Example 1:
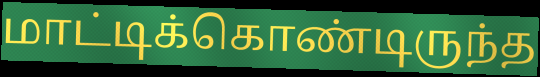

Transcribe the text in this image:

மாட்டிக்கொண்டிருந்த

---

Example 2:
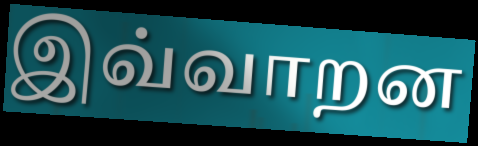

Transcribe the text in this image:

இவ்வாறன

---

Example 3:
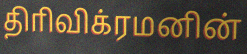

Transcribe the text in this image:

திரிவிக்ரமனின்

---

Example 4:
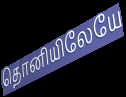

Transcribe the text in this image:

தொனியிலேயே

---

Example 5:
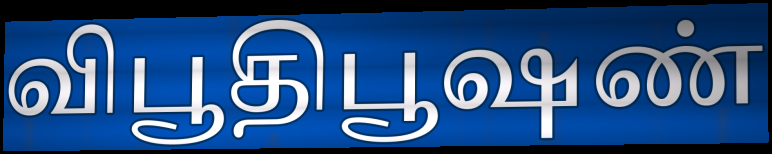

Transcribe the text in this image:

விபூதிபூஷண்